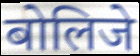
बोलिजे